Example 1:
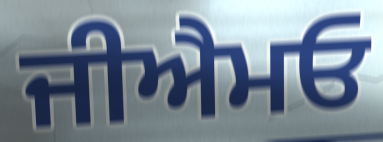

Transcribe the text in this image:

ਜੀਐਮਓ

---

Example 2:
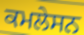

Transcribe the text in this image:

ਕਮਲੇਸਨ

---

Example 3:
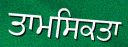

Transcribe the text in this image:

ਤਾਮਸਿਕਤਾ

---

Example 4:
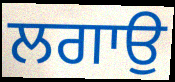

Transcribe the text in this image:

ਲਗਾਉੁ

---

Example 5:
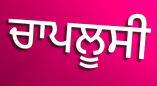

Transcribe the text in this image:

ਚਾਪਲੂਸੀ